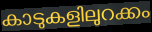
കാടുകളിലുറക്കം